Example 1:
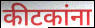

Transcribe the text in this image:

कीटकांना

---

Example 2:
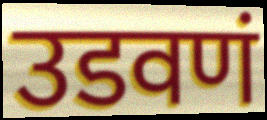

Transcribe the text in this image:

उडवणं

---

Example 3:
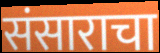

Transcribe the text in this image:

संसाराचा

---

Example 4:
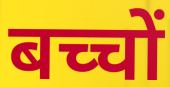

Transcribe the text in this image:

बच्चों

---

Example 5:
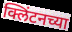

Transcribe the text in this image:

क्लिंटनच्या